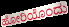
ಹೋರಿಯೊಂದು